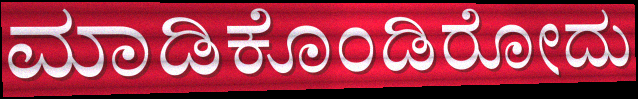
ಮಾಡಿಕೊಂಡಿರೋದು